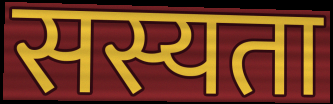
सस्यता